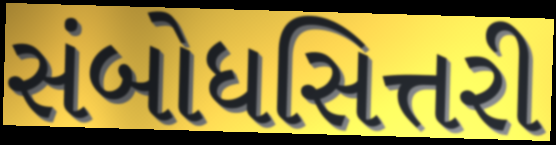
સંબોધસિત્તરી